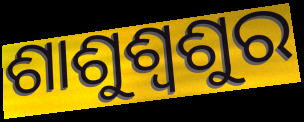
ଶାଶୁଶ୍ୱଶୁର